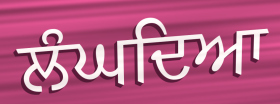
ਲੰਘਦਿਆ